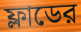
ফ্লাডের